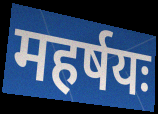
महर्षयः